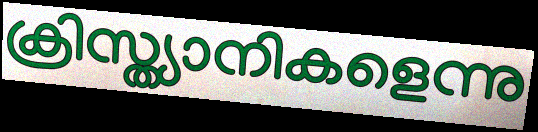
ക്രിസ്ത്യാനികളെന്നു